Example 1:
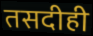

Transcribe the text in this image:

तसदीही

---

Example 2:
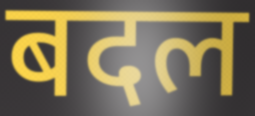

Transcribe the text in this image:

बदल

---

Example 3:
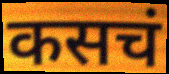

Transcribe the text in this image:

कसचं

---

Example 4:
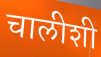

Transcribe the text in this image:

चालीशी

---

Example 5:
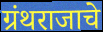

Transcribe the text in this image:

ग्रंथराजाचे